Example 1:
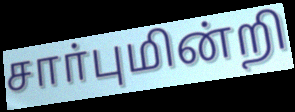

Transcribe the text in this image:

சார்புமின்றி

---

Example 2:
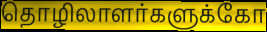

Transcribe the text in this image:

தொழிலாளர்களுக்கோ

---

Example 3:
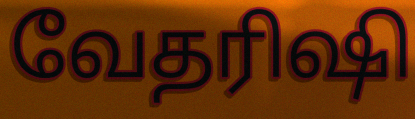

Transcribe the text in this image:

வேதரிஷி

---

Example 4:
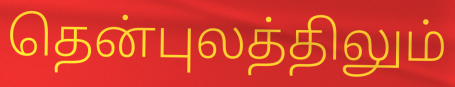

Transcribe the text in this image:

தென்புலத்திலும்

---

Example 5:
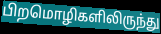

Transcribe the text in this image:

பிறமொழிகளிலிருந்து